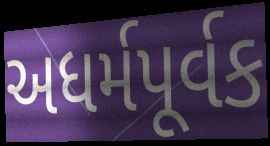
અધર્મપૂર્વક